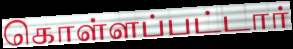
கொள்ளப்பட்டார்